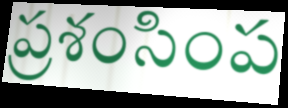
ప్రశంసింప